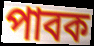
পাবক